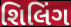
શિલિંગ